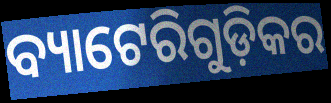
ବ୍ୟାଟେରିଗୁଡ଼ିକର